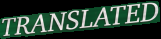
TRANSLATED